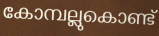
കോമ്പല്ലുകൊണ്ട്